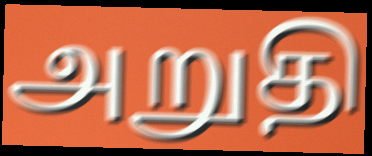
அறுதி